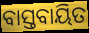
ବାସ୍ତବାୟିତ